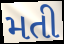
મતી